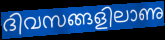
ദിവസങ്ങളിലാണു